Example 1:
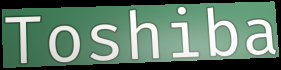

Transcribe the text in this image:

Toshiba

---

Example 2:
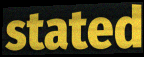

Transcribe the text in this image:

stated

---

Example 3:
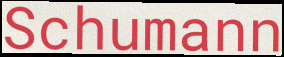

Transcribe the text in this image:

Schumann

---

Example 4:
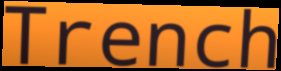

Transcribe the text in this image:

Trench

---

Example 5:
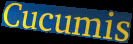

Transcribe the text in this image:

Cucumis